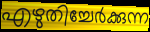
എഴുതിച്ചേർക്കുന്ന